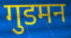
गुडमन